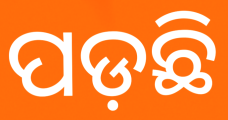
ପଡ଼ଛି